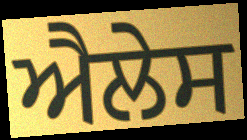
ਐਲੇਸ